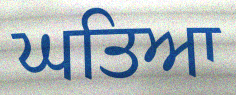
ਘਤਿਆ